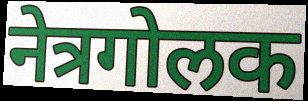
नेत्रगोलक